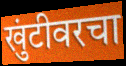
खुंटीवरचा